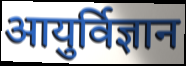
आयुर्विज्ञान